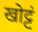
खोट्टं